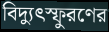
বিদ্যুৎস্ফুরণের